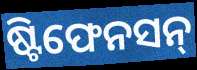
ଷ୍ଟିଫେନସନ୍